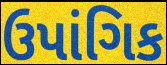
ઉપાંગિક